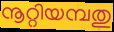
നൂറ്റിയമ്പതു